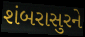
શંબરાસુરને